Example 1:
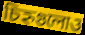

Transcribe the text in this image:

চিহ্নগুলোও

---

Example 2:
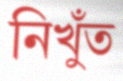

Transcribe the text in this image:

নিখুঁত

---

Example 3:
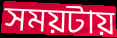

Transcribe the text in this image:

সময়টায়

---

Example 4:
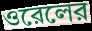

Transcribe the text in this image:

ওরেলের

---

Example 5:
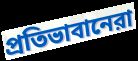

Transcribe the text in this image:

প্রতিভাবানেরা